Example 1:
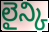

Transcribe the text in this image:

లైన్కి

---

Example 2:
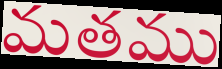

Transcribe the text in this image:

మతము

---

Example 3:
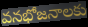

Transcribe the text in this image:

వనభోజనాలకు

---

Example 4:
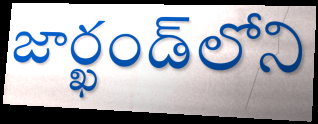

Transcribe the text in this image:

జార్ఖండ్‌లోని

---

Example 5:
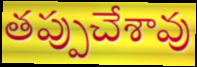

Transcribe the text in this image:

తప్పుచేశావు